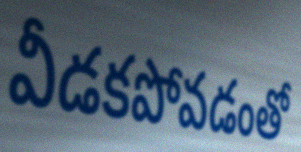
వీడకపోవడంతో